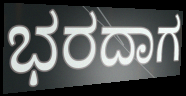
ಭರದಾಗ